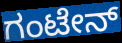
ಗಂಟೇನ್